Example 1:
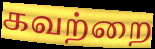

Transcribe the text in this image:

கவற்றை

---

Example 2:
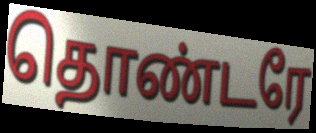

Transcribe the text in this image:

தொண்டரே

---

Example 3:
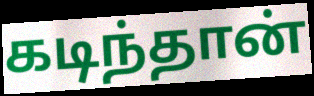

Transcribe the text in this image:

கடிந்தான்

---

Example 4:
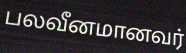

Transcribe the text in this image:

பலவீனமானவர்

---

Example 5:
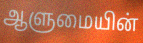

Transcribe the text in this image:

ஆளுமையின்